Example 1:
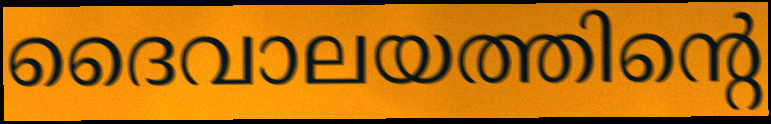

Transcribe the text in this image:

ദൈവാലയത്തിന്റെ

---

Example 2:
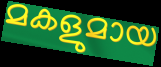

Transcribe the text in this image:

മകളുമായ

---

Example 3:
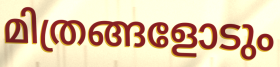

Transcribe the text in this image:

മിത്രങ്ങളോടും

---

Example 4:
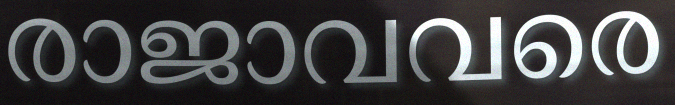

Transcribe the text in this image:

രാജാവവരെ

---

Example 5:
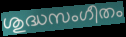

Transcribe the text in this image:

ശുദ്ധസംഗീതം